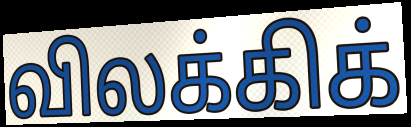
விலக்கிக்